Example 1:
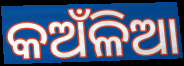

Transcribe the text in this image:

କଅଁଳିଆ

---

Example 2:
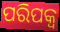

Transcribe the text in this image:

ପରିପକ୍ଵ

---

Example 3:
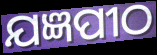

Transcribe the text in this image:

ଯଜ୍ଞପୀଠ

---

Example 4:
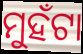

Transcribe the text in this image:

ମୁହଁଟା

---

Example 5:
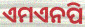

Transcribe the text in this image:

ଏମଏନପି